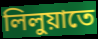
লিলুয়াতে